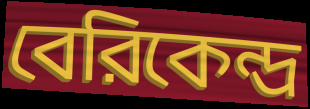
বেরিকেন্দ্র